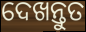
ଦେଖନ୍ତୁତ